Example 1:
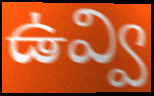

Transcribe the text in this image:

ఉవ్వి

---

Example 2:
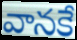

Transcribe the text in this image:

వానకే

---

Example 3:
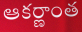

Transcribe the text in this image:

ఆకర్ణాంత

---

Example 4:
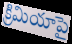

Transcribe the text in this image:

క్రిమియాపై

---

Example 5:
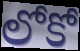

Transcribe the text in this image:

లోకో